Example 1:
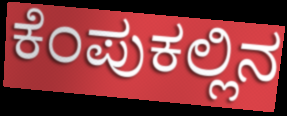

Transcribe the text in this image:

ಕೆಂಪುಕಲ್ಲಿನ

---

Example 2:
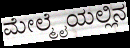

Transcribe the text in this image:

ಮೇಲ್ಮೈಯಲ್ಲಿನ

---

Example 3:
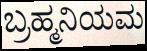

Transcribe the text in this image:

ಬ್ರಹ್ಮನಿಯಮ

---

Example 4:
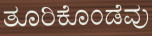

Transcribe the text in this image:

ತೂರಿಕೊಂಡೆವು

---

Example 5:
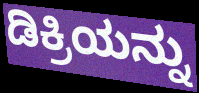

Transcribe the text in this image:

ಡಿಕ್ರಿಯನ್ನು